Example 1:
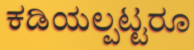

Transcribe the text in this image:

ಕಡಿಯಲ್ಪಟ್ಟರೂ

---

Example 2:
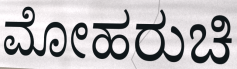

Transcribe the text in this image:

ಮೋಹರುಚಿ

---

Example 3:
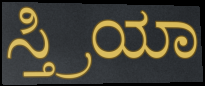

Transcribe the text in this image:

ಸ್ತ್ರಿಯಾ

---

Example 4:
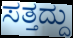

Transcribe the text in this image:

ಸತ್ತದ್ದು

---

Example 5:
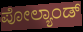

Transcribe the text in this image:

ಪೋಲ್ಯಾಂಡ್